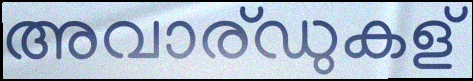
അവാര്ഡുകള്